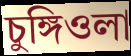
চুঙ্গিওলা